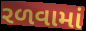
રળવામાં